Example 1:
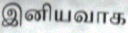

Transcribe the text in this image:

இனியவாக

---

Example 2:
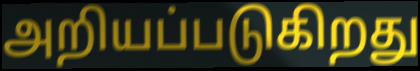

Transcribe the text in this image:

அறியப்படுகிறது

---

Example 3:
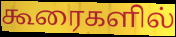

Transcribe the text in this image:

கூரைகளில்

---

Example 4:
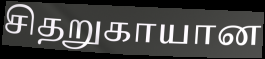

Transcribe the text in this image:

சிதறுகாயான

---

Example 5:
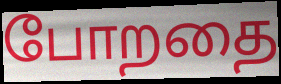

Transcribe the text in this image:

போறதை